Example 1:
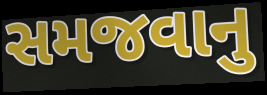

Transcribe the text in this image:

સમજવાનુ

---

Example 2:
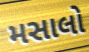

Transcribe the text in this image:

મસાલો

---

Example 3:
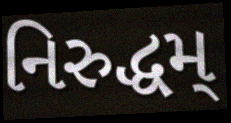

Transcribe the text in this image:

નિરુદ્ધમ્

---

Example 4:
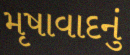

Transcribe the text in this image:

મૃષાવાદનું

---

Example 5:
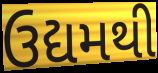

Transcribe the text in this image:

ઉદ્યમથી